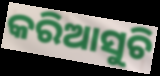
କରିଆସୁଚି